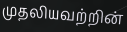
முதலியவற்றின்